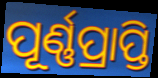
ପୂର୍ଣ୍ଣପ୍ରାପ୍ତି